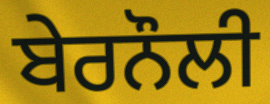
ਬੇਰਨੌਲੀ